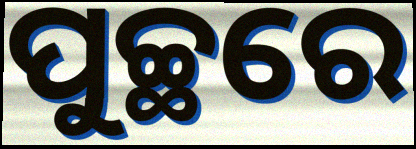
ପୁଚ୍ଛରେ